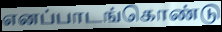
எனப்பாடங்கொண்டு